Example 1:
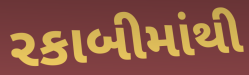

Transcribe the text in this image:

રકાબીમાંથી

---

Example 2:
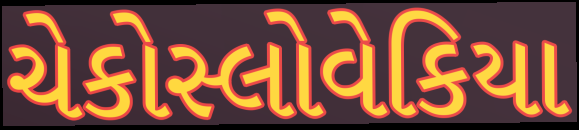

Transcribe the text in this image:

ચેકોસ્લોવેકિયા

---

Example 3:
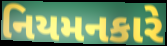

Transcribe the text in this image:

નિયમનકારે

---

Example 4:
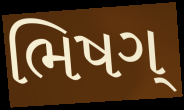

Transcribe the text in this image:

ભિષગ્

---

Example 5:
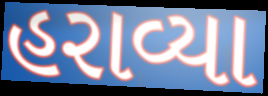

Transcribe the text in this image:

હરાવ્યા